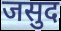
जसुद